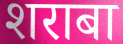
शराबा